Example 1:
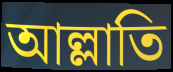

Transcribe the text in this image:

আল্লাতি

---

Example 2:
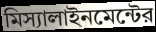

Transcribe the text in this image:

মিস্যালাইনমেন্টের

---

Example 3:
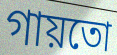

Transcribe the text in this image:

গায়তো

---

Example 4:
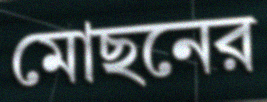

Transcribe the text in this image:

মোছনের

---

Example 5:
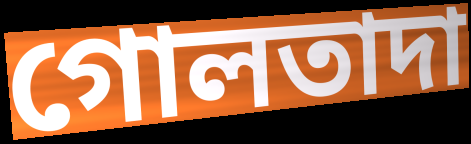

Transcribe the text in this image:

গোলতাদা